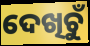
ଦେଖିଚୁଁ